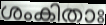
ശംകിതാഃ